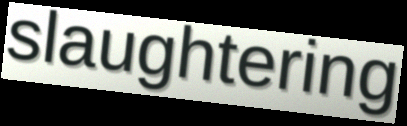
slaughtering